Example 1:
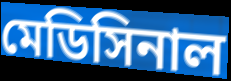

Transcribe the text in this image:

মেডিসিনাল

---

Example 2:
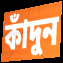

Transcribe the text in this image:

কাঁদুন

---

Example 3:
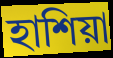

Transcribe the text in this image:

হাশিয়া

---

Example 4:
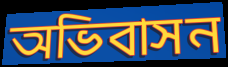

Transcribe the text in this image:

অভিবাসন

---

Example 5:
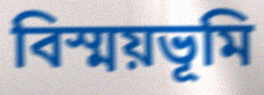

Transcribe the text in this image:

বিস্ময়ভূমি